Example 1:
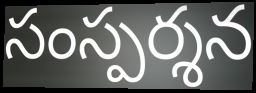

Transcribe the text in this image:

సంస్పర్శన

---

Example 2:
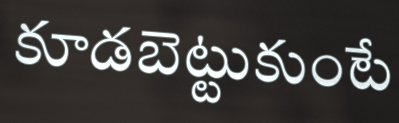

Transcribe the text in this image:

కూడబెట్టుకుంటే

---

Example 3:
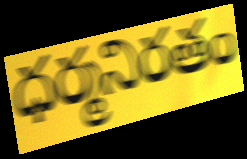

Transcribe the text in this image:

ధర్మనిరతం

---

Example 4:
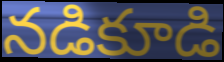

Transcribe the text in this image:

నడికూడి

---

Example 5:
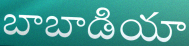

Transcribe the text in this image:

బాబాడియా